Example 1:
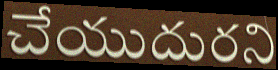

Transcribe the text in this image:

చేయుదురని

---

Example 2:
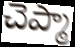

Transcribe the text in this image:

చెప్మా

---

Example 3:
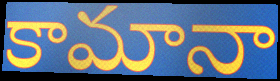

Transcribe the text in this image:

కామానా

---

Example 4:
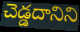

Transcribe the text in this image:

చెడ్డదానిని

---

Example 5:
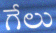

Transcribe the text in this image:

గేలు